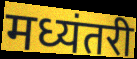
मध्यंतरी